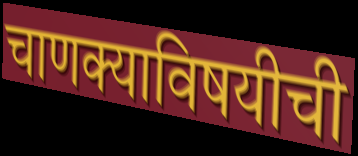
चाणक्याविषयीची